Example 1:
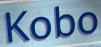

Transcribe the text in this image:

Kobo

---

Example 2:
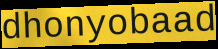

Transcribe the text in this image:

dhonyobaad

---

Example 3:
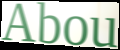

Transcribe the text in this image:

Abou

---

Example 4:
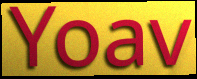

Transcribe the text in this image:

Yoav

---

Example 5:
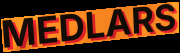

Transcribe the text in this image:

MEDLARS